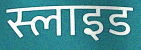
स्लाइड